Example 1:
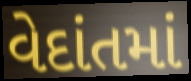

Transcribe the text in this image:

વેદાંતમાં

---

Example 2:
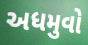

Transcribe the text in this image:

અધમુવો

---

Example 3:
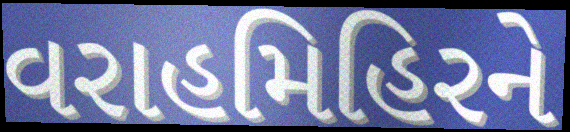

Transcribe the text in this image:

વરાહમિહિરને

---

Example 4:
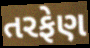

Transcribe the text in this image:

તરફેણ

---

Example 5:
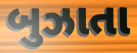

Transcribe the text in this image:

બુઝાતા